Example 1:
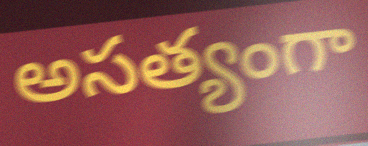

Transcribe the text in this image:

అసత్యంగా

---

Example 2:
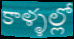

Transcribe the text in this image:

కాళ్ళల్లో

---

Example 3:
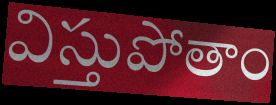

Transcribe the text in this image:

విస్తుపోతాం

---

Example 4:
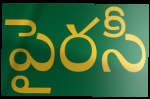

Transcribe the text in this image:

పైరసీ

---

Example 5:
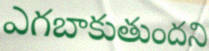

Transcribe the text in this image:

ఎగబాకుతుందని